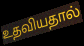
உதவியதால்